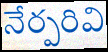
నేర్పరివి